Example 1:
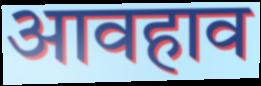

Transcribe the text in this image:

आवहाव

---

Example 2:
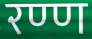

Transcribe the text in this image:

रण्ण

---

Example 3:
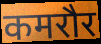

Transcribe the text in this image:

कमरौर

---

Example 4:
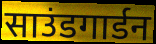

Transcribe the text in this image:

साउंडगार्डन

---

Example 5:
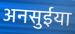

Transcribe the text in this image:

अनसुईया